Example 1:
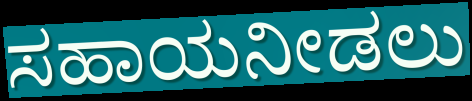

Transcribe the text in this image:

ಸಹಾಯನೀಡಲು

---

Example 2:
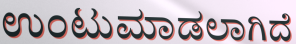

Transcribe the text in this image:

ಉಂಟುಮಾಡಲಾಗಿದೆ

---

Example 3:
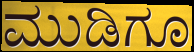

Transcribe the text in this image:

ಮುಡಿಗೂ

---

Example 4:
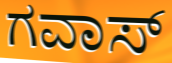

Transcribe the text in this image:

ಗವಾಸ್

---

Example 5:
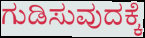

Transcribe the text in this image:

ಗುಡಿಸುವುದಕ್ಕೆ